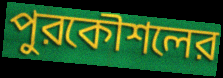
পুরকৌশলের